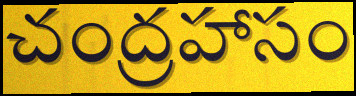
చంద్రహాసం